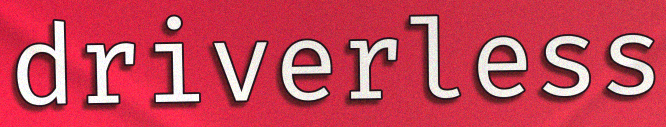
driverless